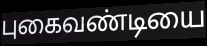
புகைவண்டியை